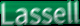
Lassell